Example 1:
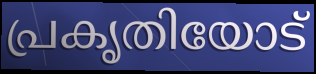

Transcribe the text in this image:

പ്രകൃതിയോട്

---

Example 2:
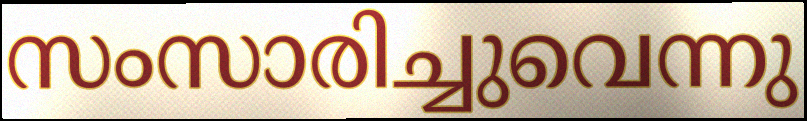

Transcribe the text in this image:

സംസാരിച്ചുവെന്നു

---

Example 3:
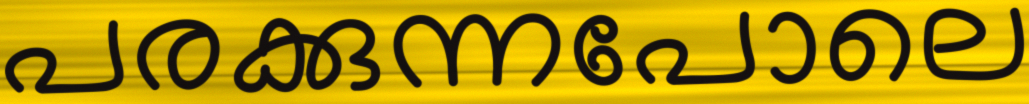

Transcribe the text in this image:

പരക്കുന്നപോലെ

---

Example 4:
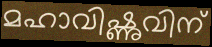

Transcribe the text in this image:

മഹാവിഷ്ണുവിന്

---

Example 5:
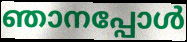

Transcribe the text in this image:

ഞാനപ്പോൾ